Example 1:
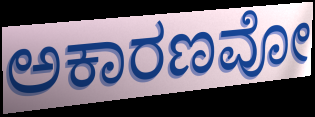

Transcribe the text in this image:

ಅಕಾರಣವೋ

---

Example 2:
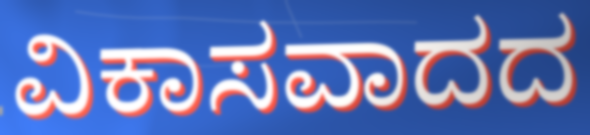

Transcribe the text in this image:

ವಿಕಾಸವಾದದ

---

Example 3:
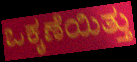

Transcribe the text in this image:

ಒಕ್ಕಣೆಯಿತ್ತು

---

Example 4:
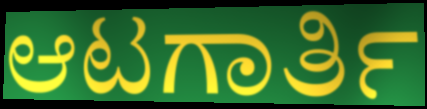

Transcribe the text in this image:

ಆಟಗಾರ್ತಿ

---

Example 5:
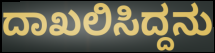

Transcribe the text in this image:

ದಾಖಲಿಸಿದ್ದನು